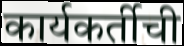
कार्यकर्तीची